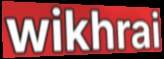
wikhrai